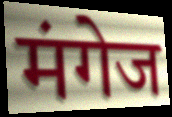
मंगेज